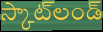
స్కాట్‌లండ్